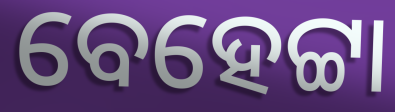
ବେହେଟ୍ଟା